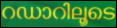
റഡാറിലൂടെ